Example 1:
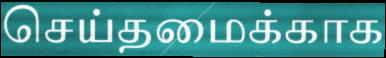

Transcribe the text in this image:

செய்தமைக்காக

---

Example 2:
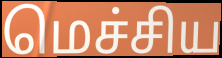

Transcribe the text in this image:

மெச்சிய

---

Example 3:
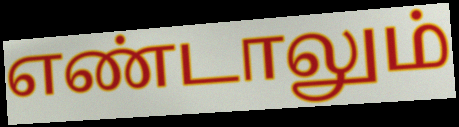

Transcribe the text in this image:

எண்டாலும்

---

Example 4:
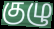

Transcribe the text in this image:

குழு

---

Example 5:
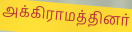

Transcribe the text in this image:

அக்கிராமத்தினர்